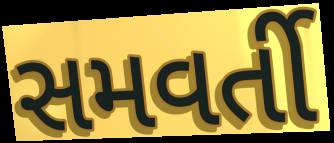
સમવર્તી